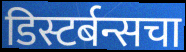
डिस्टर्बन्सचा